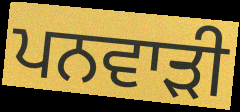
ਪਨਵਾੜੀ